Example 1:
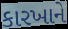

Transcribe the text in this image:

કારખાને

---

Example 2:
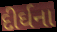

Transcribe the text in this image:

દીર્ઘના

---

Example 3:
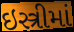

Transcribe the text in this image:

ઇસ્ત્રીમાં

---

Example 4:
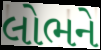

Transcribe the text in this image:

લોભને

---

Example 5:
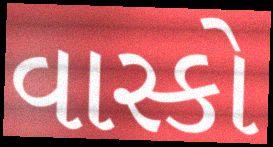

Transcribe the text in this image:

વાસ્કો